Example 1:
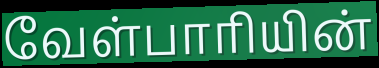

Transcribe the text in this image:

வேள்பாரியின்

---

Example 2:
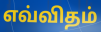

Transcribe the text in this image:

எவ்விதம்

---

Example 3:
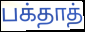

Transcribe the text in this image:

பக்தாத்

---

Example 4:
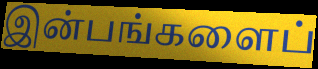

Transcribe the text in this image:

இன்பங்களைப்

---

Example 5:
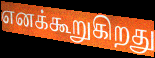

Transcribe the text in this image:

எனக்கூறுகிறது